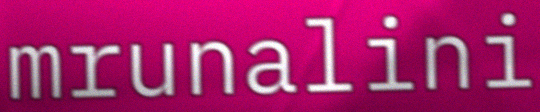
mrunalini